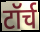
टॉर्च